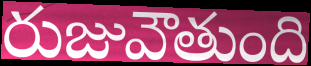
రుజువౌతుంది